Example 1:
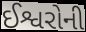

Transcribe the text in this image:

ઈશ્વરોની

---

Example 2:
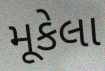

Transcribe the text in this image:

મૂકેલા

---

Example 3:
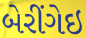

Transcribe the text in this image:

બેરીંગેઇ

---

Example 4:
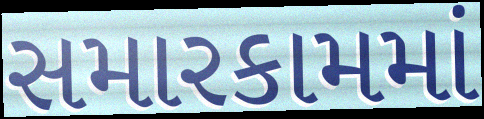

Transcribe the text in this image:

સમારકામમાં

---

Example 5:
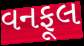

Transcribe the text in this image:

વનફૂલ